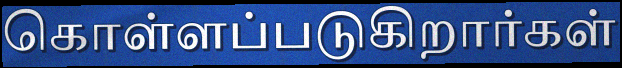
கொள்ளப்படுகிறார்கள்